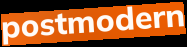
postmodern